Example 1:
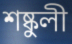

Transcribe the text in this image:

শষ্কুলী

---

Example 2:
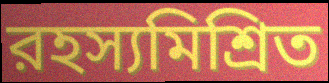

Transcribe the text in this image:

রহস্যমিশ্রিত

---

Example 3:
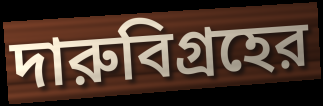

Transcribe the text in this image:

দারুবিগ্রহের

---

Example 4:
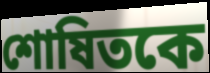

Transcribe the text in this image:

শোষিতকে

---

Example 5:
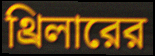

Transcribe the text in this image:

থ্রিলারের